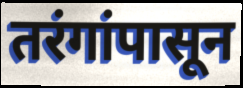
तरंगांपासून